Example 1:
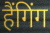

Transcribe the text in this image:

हैंगिंग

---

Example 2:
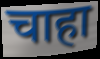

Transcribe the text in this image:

चाहा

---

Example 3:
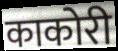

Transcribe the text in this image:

काकोरी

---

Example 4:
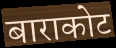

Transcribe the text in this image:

बाराकोट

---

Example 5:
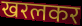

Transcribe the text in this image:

खरलकर